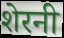
शेरनी